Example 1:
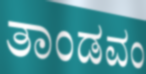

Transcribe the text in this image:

ತಾಂಡವಂ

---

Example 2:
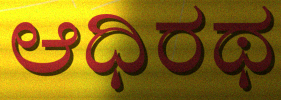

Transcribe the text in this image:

ಆಧಿರಥ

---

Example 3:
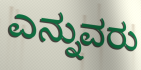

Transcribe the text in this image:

ಎನ್ನುವರು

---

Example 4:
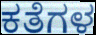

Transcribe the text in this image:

ಕತೆಗಳ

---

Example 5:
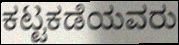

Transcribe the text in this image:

ಕಟ್ಟಕಡೆಯವರು